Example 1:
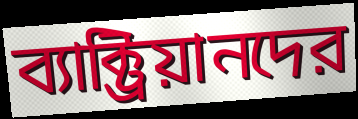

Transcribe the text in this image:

ব্যাক্ট্রিয়ানদের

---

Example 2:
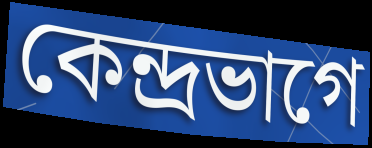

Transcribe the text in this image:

কেন্দ্রভাগে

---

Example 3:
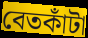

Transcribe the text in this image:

বেতকাঁটা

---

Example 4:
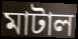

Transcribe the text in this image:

মাটাল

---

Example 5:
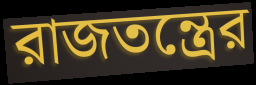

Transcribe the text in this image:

রাজতন্ত্রের